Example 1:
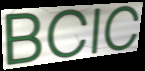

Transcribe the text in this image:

BCIC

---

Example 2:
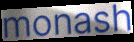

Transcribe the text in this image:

monash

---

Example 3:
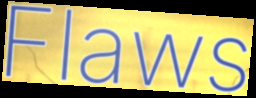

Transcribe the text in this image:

Flaws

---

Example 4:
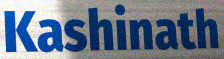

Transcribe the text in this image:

Kashinath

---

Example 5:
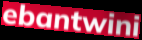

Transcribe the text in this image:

ebantwini